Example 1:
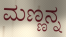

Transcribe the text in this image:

ಮಣ್ಣನ್ನ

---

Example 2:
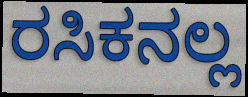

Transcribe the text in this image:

ರಸಿಕನಲ್ಲ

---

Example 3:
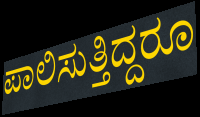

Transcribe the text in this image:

ಪಾಲಿಸುತ್ತಿದ್ದರೂ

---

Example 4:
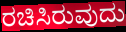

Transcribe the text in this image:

ರಚಿಸಿರುವುದು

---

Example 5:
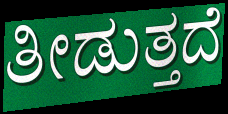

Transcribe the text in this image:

ತೀಡುತ್ತದೆ